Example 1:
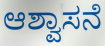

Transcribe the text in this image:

ಆಶ್ವಾಸನೆ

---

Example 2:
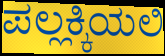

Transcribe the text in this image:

ಪಲ್ಲಕ್ಕಿಯಲಿ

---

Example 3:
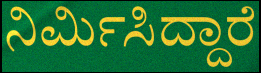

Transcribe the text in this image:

ನಿರ್ಮಿಸಿದ್ದಾರೆ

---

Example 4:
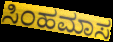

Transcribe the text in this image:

ಸಿಂಹಮಾಸ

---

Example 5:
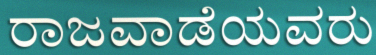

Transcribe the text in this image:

ರಾಜವಾಡೆಯವರು